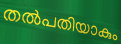
തൽപതിയാകും